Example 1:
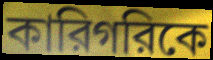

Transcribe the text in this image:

কারিগরিকে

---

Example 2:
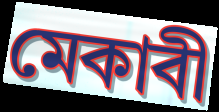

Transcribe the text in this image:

মেকাবী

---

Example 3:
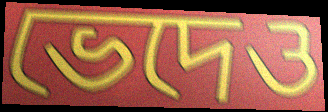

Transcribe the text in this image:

ভেদেও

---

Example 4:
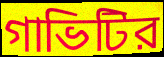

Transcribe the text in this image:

গাভিটির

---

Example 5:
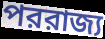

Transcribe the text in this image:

পররাজ্য